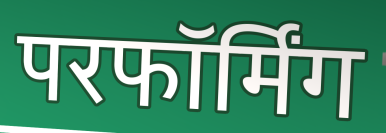
परफॉर्मिंग